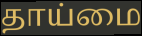
தாய்மை